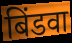
बिंडवा